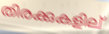
തിരക്കുകളില്